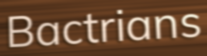
Bactrians